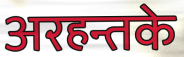
अरहन्तके